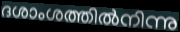
ദശാംശത്തിൽനിന്നു